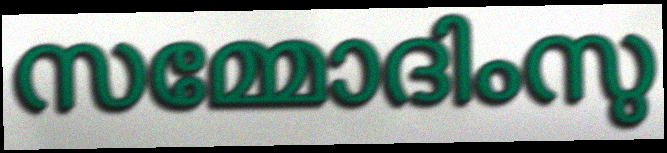
സമ്മോദിംസു